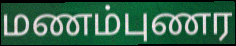
மணம்புணர